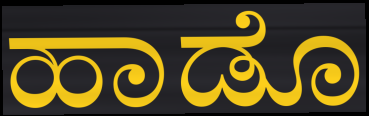
ಹಾಡೊ